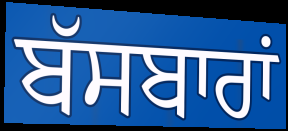
ਬੱਸਬਾਰਾਂ